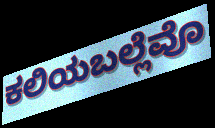
ಕಲಿಯಬಲ್ಲೆವೊ